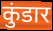
कुंडार